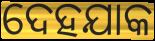
ଦେହଯାକ